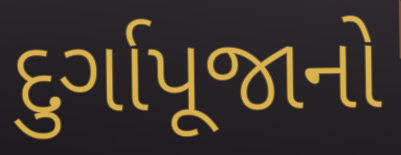
દુર્ગાપૂજાનો